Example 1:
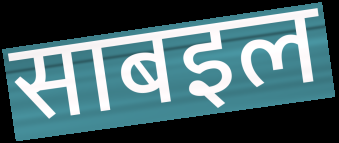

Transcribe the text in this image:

साबइल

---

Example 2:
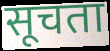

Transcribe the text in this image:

सूचता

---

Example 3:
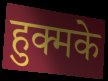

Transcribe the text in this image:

हुक्मके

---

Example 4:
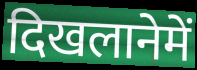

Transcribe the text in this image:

दिखलानेमें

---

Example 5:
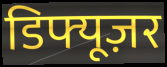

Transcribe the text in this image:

डिफ्यूज़र